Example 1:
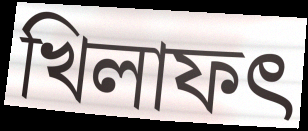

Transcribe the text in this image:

খিলাফৎ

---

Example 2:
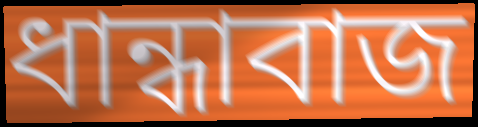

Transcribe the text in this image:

ধান্ধাবাজ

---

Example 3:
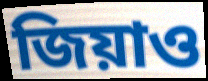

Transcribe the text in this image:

জিয়াও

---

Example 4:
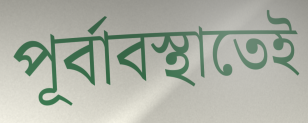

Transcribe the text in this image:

পূর্বাবস্থাতেই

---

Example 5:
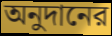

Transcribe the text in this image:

অনুদানের